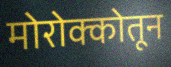
मोरोक्कोतून